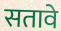
सतावे